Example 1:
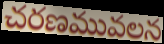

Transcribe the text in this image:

చరణమువలన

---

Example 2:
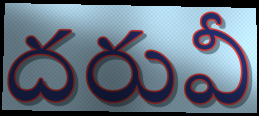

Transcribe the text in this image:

దరువీ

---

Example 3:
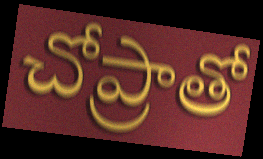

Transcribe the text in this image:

చోప్రాతో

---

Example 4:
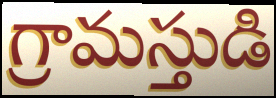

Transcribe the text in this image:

గ్రామస్తుడి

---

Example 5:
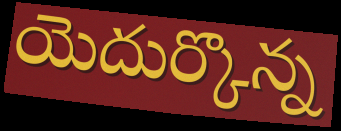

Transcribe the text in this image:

యెదుర్కొన్న